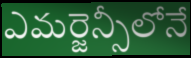
ఎమర్జెన్సీలోనే